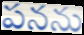
పనను